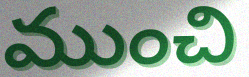
ముంచి